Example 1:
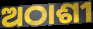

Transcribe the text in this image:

ଅଠାଶୀ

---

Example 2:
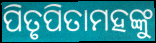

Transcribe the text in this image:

ପିତୃପିତାମହଙ୍କୁ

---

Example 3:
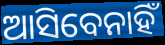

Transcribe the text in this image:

ଆସିବେନାହିଁ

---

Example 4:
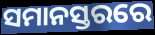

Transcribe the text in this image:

ସମାନସ୍ତରରେ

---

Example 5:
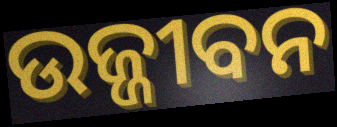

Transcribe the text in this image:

ଉଜ୍ଜୀବନ